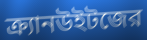
ক্র্যানউইটজের